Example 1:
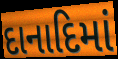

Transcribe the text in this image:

દાનાદિમાં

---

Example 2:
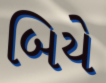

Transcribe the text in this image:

બિયે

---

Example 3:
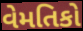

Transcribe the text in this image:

વેમતિકો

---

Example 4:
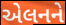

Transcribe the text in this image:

એલનને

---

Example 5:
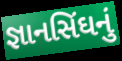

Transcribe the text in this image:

જ્ઞાનસિંઘનું